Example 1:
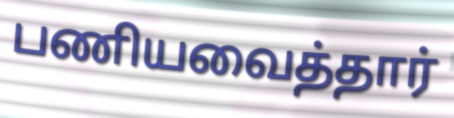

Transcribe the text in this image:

பணியவைத்தார்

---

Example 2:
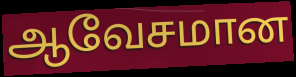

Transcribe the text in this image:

ஆவேசமான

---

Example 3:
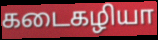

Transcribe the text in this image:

கடைகழியா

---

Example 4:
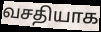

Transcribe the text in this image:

வசதியாக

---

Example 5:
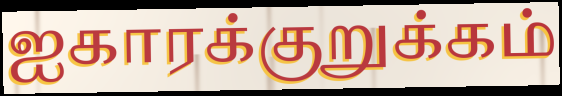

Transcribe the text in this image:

ஐகாரக்குறுக்கம்